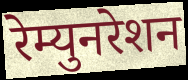
रेम्युनरेशन